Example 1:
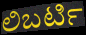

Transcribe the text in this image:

ಲಿಬರ್ಟಿ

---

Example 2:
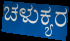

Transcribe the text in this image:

ಚಳುಕ್ಯರ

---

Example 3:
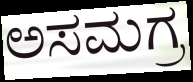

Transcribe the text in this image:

ಅಸಮಗ್ರ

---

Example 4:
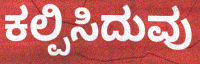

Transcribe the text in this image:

ಕಲ್ಪಿಸಿದುವು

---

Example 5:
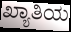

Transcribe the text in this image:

ಖ್ಯಾತಿಯ